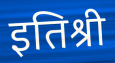
इतिश्री